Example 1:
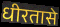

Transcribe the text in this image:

धीरतासे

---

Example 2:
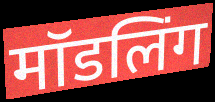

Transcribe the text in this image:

मॉडलिंग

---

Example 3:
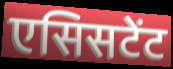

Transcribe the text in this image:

एसिसटेंट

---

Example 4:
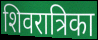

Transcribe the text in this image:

शिवरात्रिका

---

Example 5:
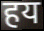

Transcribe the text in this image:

हय